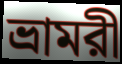
ভ্রামরী